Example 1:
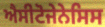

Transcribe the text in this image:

ਐਸੀਟੋਜੇਨੇਸਿਸ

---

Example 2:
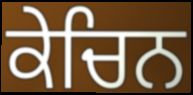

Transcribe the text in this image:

ਕੇਚਿਨ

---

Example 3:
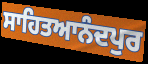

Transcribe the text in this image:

ਸਾਹਿਤਆਨੰਦਪੁਰ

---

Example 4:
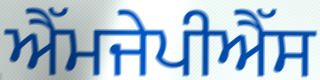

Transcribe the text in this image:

ਐੱਮਜੇਪੀਐੱਸ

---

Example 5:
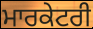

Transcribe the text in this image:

ਮਾਰਕੇਟਰੀ